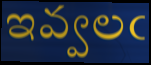
ఇవ్వలఁ